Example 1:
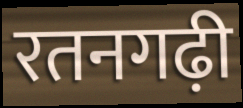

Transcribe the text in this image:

रतनगढ़ी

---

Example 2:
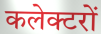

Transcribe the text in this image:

कलेक्टरों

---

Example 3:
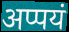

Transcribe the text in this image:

अप्पयं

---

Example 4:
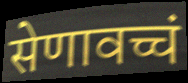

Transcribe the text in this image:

सेणावच्चं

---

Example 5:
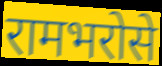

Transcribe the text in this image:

रामभरोसे